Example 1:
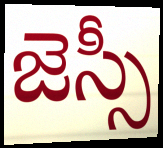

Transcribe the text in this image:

జెస్సీ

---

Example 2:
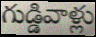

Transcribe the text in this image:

గుడ్డివాళ్లు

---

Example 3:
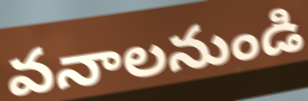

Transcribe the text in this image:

వనాలనుండి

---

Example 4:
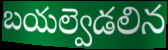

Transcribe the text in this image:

బయల్వెడలిన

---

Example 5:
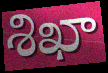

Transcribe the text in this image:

శిఖా